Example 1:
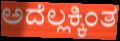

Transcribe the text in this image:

ಅದೆಲ್ಲಕ್ಕಿಂತ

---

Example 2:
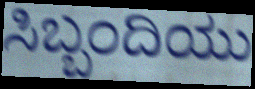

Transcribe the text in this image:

ಸಿಬ್ಬಂದಿಯು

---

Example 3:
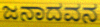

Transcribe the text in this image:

ಜನಾದವನ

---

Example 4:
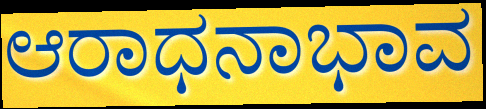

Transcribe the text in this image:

ಆರಾಧನಾಭಾವ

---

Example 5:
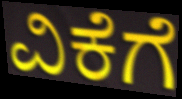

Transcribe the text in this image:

ವಿಕೆಗೆ